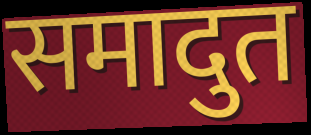
समादुत